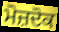
ਮੋਜ਼ਦੋਕ